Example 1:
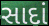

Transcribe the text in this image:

સાદાં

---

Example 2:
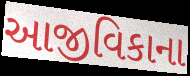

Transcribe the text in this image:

આજીવિકાના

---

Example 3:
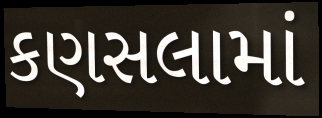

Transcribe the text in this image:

કણસલામાં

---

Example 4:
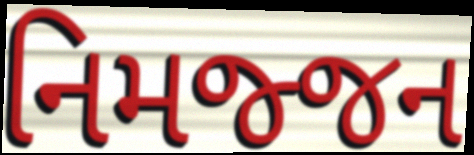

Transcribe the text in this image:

નિમજ્જન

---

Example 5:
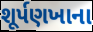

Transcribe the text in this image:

શૂર્પણખાના